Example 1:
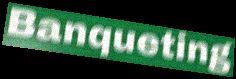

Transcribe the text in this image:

Banqueting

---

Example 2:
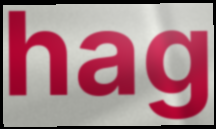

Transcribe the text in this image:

hag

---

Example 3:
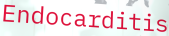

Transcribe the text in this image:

Endocarditis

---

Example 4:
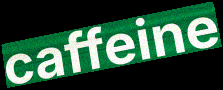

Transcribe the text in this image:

caffeine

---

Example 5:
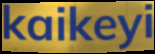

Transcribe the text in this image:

kaikeyi